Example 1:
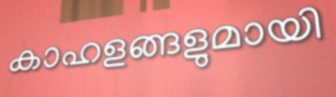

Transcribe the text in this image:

കാഹളങ്ങളുമായി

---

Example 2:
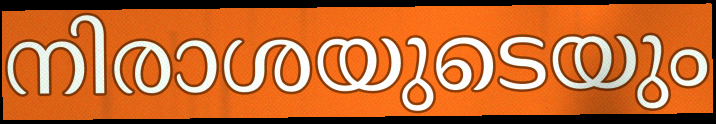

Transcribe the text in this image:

നിരാശയുടെയും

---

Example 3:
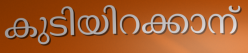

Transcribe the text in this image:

കുടിയിറക്കാന്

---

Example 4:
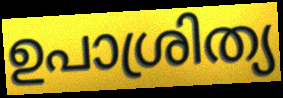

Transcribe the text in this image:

ഉപാശ്രിത്യ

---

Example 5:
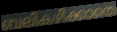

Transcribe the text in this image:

ബലികഴിക്കാതെ